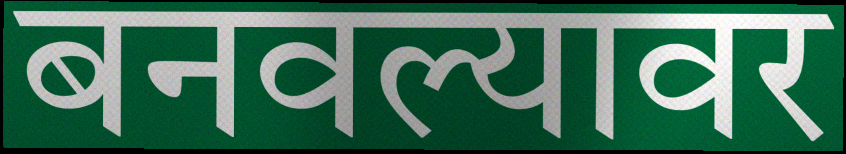
बनवल्यावर